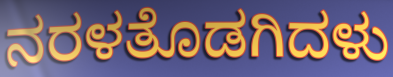
ನರಳತೊಡಗಿದಳು